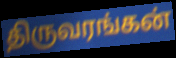
திருவரங்கன்